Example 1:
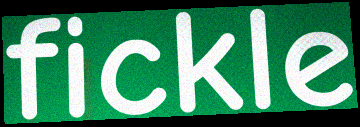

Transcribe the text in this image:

fickle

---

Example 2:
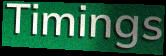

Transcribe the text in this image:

Timings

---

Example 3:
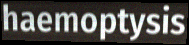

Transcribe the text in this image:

haemoptysis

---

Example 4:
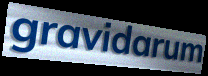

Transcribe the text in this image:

gravidarum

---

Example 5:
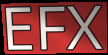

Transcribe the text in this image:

EFX